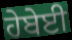
ਹੇਬੇਈ